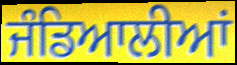
ਜੰਡਿਆਲੀਆਂ